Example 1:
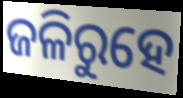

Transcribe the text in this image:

ଜଳିରୁହେ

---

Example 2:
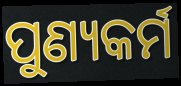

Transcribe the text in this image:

ପୁଣ୍ୟକର୍ମ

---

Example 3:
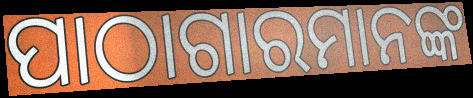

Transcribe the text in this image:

ପାଠାଗାରମାନଙ୍କ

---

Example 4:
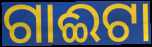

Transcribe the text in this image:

ଗାଈଟା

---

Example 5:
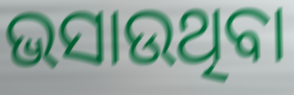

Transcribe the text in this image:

ଭସାଉଥିବା